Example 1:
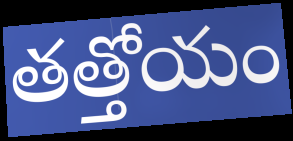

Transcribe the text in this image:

తత్తోయం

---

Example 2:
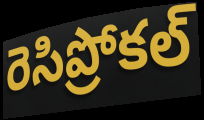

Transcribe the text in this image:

రెసిప్రోకల్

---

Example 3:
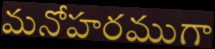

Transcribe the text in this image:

మనోహరముగా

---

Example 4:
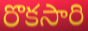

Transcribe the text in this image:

రొకసారి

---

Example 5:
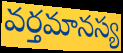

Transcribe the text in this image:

వర్తమానస్య